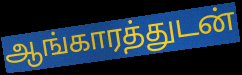
ஆங்காரத்துடன்